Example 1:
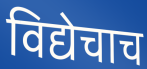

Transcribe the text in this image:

विद्येचाच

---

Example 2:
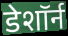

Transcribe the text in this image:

डेशॉर्न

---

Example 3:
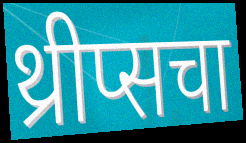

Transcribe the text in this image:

थ्रीप्सचा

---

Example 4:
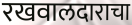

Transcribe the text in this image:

रखवालदाराचा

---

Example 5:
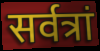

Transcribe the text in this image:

सर्वत्रां